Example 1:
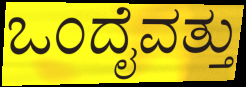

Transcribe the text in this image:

ಒಂದೈವತ್ತು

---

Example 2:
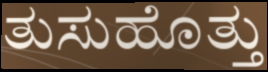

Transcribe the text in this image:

ತುಸುಹೊತ್ತು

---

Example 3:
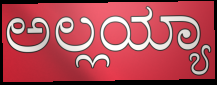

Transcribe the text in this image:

ಅಲ್ಲಯ್ಯಾ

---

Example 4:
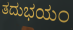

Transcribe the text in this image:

ತದುಭಯಂ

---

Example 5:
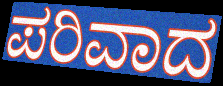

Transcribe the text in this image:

ಪರಿವಾದ